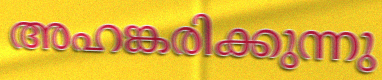
അഹങ്കരിക്കുന്നു